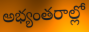
అభ్యంతరాల్లో